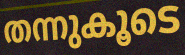
തന്നുകൂടെ